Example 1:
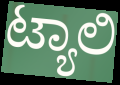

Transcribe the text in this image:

ಟ್ಯಾಲಿ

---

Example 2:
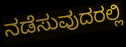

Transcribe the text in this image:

ನಡೆಸುವುದರಲ್ಲಿ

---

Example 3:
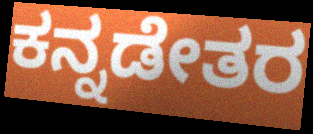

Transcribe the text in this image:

ಕನ್ನಡೇತರ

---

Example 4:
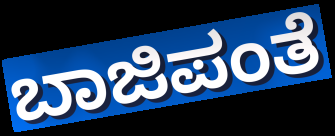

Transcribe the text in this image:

ಬಾಜಿಪಂತೆ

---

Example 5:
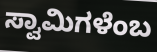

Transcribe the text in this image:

ಸ್ವಾಮಿಗಳೆಂಬ